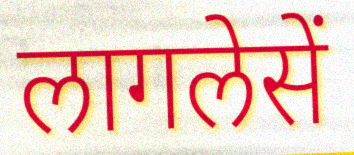
लागलेसें